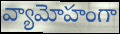
వ్యామోహంగా